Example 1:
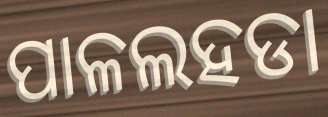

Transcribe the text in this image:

ପାଳଲହଡା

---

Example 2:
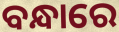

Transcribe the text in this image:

ବନ୍ଧାରେ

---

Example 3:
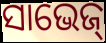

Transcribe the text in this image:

ସାଭେଜ୍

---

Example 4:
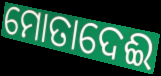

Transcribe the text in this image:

ମୋତାଦେଈ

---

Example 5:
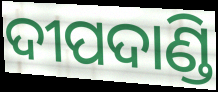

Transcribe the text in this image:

ଦୀପଦାଣ୍ଡି